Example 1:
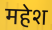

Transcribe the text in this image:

महेश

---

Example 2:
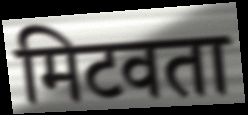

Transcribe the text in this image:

मिटवता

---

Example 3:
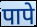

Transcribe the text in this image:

पापे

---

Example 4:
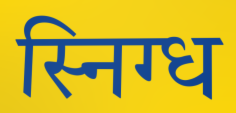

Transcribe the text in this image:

स्‍निग्ध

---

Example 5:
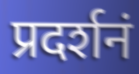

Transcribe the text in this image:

प्रदर्शनं